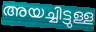
അയച്ചിട്ടുള്ള